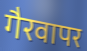
गैरवापर